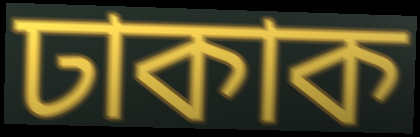
ঢাকাক